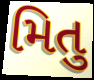
મિતુ